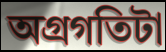
অগ্রগতিটা